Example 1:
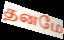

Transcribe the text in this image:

தனமே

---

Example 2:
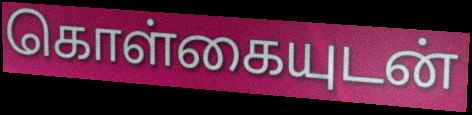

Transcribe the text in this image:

கொள்கையுடன்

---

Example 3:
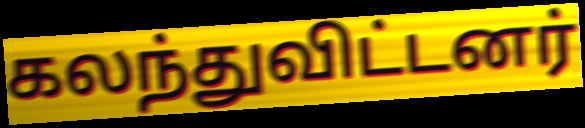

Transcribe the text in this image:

கலந்துவிட்டனர்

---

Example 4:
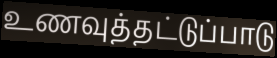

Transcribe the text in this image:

உணவுத்தட்டுப்பாடு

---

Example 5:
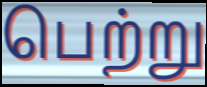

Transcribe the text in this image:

பெற்று